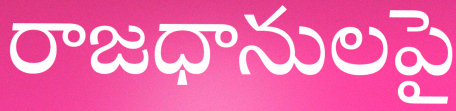
రాజధానులపై